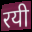
रयी